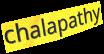
chalapathy